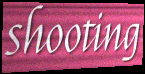
shooting